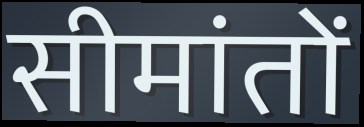
सीमांतों